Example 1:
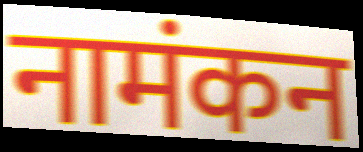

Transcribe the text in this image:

नामंकन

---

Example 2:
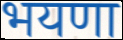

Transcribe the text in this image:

भयणा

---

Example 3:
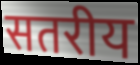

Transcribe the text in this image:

सतरीय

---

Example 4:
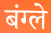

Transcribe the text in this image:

बंग्ले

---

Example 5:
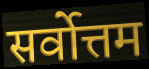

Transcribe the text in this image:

सर्वोत्तम